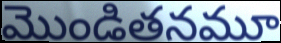
మొండితనమూ